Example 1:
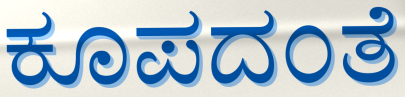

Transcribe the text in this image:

ಕೂಪದಂತೆ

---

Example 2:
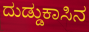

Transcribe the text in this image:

ದುಡ್ಡುಕಾಸಿನ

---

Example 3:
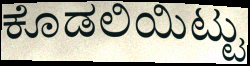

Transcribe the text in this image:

ಕೊಡಲಿಯಿಟ್ಟು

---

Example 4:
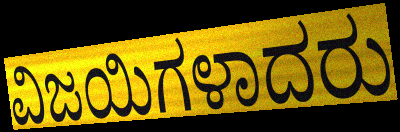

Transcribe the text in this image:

ವಿಜಯಿಗಳಾದರು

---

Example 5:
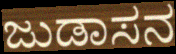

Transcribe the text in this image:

ಜುಡಾಸನ